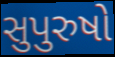
સુપુરુષો